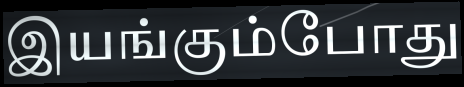
இயங்கும்போது